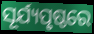
ସୂର୍ଯ୍ୟପୃଷ୍ଠରେ